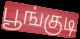
பூங்குடி